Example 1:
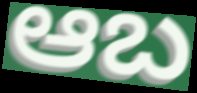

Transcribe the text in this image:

ఆబ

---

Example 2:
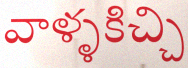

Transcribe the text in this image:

వాళ్ళకిచ్చి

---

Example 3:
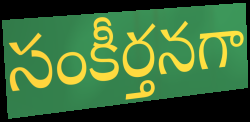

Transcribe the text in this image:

సంకీర్తనగా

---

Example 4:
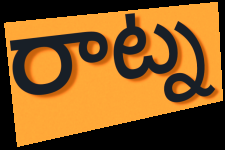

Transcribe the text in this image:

రాట్న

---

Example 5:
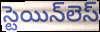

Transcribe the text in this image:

స్టెయిన్‌లెస్